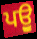
ਪਉੂ